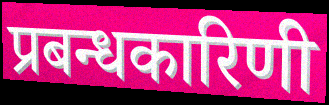
प्रबन्धकारिणी